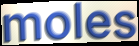
moles